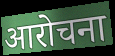
आरोचना